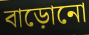
বাড়োনো